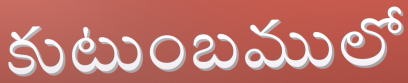
కుటుంబములో